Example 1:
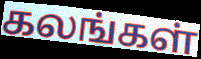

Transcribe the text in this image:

கலங்கள்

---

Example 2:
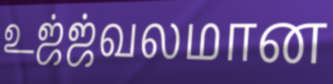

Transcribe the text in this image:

உஜ்ஜ்வலமான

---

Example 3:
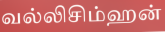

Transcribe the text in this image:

வல்லிசிம்ஹன்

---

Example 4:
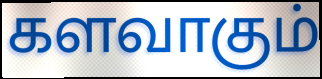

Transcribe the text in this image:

களவாகும்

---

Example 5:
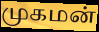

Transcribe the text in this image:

முகமன்